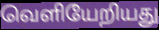
வெளியேறியது